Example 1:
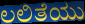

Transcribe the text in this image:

ಲಲಿತೆಯು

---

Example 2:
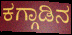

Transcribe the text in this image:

ಕಗ್ಗಾಡಿನ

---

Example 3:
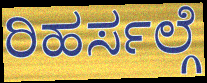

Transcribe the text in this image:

ರಿಹರ್ಸಲ್ಗೆ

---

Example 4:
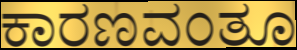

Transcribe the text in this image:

ಕಾರಣವಂತೂ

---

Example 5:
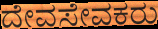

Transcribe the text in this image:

ದೇವಸೇವಕರು